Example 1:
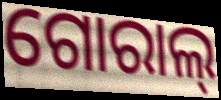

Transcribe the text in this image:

ଗୋରାଲ୍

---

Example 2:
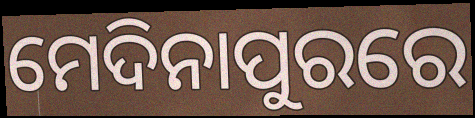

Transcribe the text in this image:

ମେଦିନାପୁରରେ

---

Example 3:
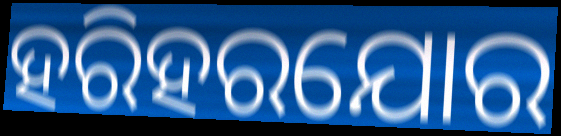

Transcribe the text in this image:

ହରିହରଯୋର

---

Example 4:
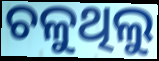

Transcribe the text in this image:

ଚଳୁଥିଲୁ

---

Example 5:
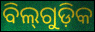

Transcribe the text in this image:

ବିଲ୍‌ଗୁଡ଼ିକ